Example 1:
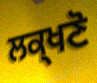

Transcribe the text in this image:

ਲਕ੍ਖਣੋ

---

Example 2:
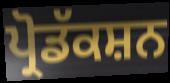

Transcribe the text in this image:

ਪ੍ਰੋਡੱਕਸ਼ਨ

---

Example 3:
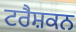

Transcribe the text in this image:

ਟਰੈਸ਼ਕਨ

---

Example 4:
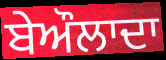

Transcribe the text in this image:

ਬੇਔਲਾਦਾ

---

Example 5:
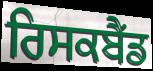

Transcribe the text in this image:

ਰਿਸਕਬੈਂਡ